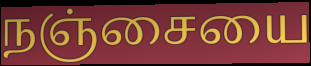
நஞ்சையை